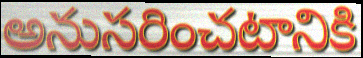
అనుసరించటానికి